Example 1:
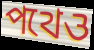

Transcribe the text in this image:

পথেও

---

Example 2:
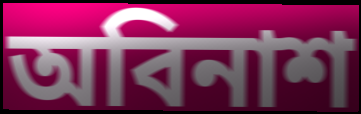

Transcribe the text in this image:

অবিনাশ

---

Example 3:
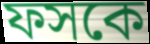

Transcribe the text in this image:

ফসকে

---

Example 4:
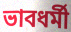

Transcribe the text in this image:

ভাবধর্মী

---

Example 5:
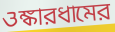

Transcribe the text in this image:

ওঙ্কারধামের